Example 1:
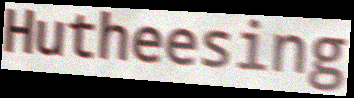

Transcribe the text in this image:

Hutheesing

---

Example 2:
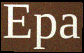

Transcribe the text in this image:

Epa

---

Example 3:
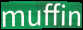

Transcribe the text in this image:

muffin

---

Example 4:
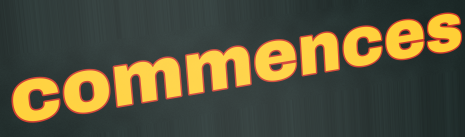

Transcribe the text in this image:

commences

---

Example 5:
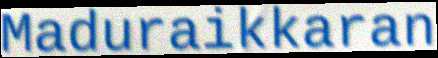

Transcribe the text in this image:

Maduraikkaran